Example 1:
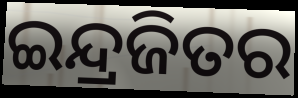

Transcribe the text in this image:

ଇନ୍ଦ୍ରଜିତର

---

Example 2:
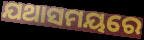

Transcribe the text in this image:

ଯଥାସମୟରେ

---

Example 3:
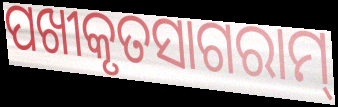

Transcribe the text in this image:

ପଖୀକୃତସାଗରାମ୍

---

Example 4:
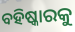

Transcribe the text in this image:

ବହିଷ୍କାରକୁ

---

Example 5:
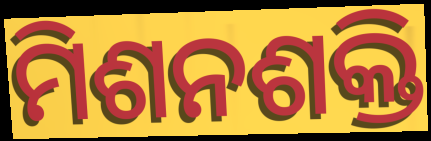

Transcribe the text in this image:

ମିଶନଶକ୍ତି